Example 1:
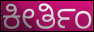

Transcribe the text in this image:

ಕೀರ್ತಿಂ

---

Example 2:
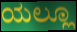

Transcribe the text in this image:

ಯಲ್ಲೂ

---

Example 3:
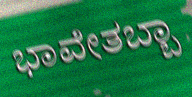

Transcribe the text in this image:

ಭಾವೇತಬ್ಬಾ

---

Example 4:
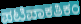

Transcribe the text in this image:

ಪಟಿಪಾಕತಿಕಂ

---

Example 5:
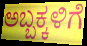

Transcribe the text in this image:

ಅಬ್ಬಕ್ಕಳಿಗೆ